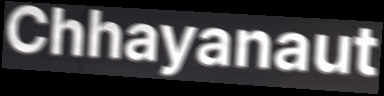
Chhayanaut